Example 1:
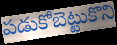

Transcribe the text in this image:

పడుకోబెట్టుకొని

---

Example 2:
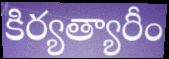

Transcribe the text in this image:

కిర్యత్యారీం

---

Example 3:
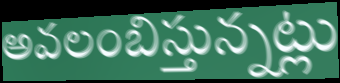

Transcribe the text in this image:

అవలంబిస్తున్నట్లు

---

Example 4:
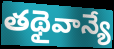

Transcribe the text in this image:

తథైవాన్యే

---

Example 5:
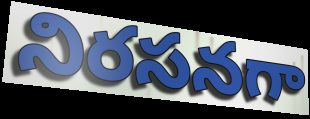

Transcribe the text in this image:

నిరసనగా